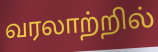
வரலாற்றில்